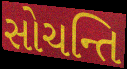
સોચન્તિ